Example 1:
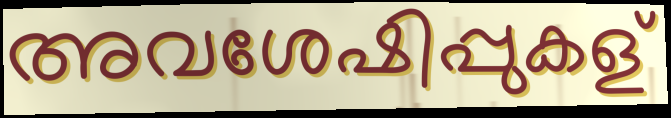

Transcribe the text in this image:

അവശേഷിപ്പുകള്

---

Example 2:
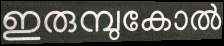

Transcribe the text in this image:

ഇരുമ്പുകോൽ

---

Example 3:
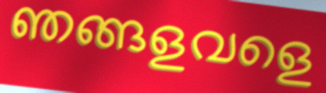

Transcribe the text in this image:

ഞങ്ങളവളെ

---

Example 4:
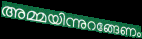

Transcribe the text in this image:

അമ്മയിന്നുറങ്ങേണം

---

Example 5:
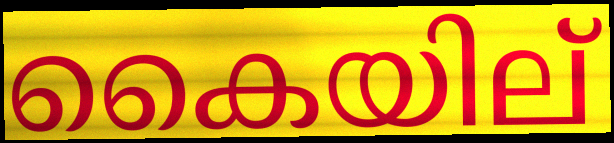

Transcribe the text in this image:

കൈയില്